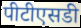
पीटीएसडी